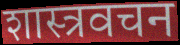
शास्त्रवचन